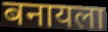
बनायला